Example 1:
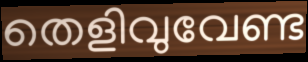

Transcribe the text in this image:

തെളിവുവേണ്ട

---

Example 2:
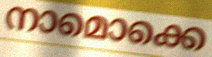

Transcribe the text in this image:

നാമൊക്കെ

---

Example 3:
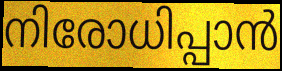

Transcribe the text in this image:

നിരോധിപ്പാൻ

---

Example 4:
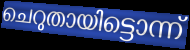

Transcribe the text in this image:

ചെറുതായിട്ടൊന്ന്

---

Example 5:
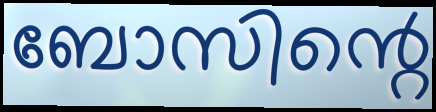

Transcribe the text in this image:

ബോസിന്റെ